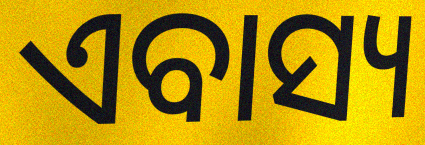
ଏବାସ୍ୟ